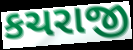
કચરાજી